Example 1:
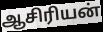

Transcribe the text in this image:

ஆசிரியன்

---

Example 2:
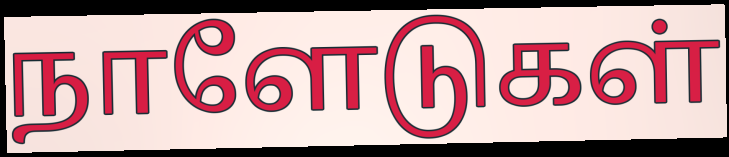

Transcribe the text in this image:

நாளேடுகள்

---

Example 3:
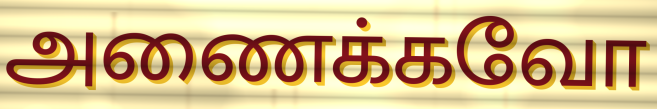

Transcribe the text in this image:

அணைக்கவோ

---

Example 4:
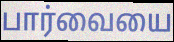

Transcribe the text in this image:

பார்வையை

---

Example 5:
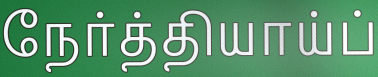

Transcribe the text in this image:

நேர்த்தியாய்ப்